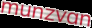
munzvan